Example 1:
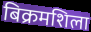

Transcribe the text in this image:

बिक्रमशिला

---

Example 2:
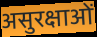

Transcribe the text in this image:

असुरक्षाओं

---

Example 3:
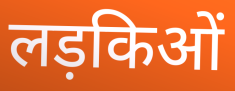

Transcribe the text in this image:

लड़किओं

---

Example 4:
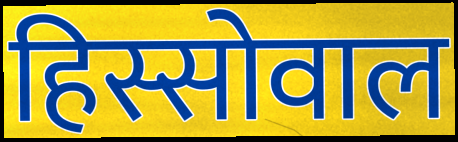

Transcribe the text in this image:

हिस्सोवाल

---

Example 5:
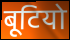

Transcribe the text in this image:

बूटियो